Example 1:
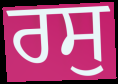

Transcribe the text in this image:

ਰਸੁ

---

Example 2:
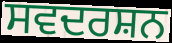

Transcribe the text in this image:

ਸਵਦਰਸ਼ਨ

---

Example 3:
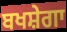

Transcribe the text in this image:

ਬਖਸ਼ੇਗਾ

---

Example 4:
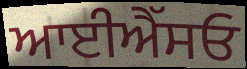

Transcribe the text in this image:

ਆਈਐੱਸਓ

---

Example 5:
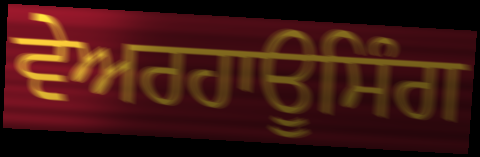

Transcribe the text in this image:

ਵੇਅਰਹਾਊਸਿੰਗ